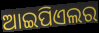
ଆଇପିଏଲର